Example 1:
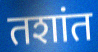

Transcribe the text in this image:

तशांत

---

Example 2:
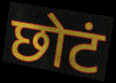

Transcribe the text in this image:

छोटं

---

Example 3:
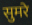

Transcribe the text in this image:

सुमरे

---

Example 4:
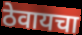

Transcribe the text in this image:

ठेवायचा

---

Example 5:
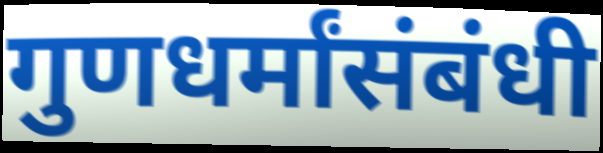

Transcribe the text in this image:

गुणधर्मांसंबंधी